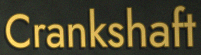
Crankshaft